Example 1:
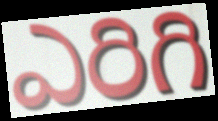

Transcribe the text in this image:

ఎరిగి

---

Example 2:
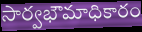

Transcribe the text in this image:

సార్వభౌమాధికారం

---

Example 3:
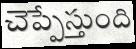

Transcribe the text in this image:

చెప్పేస్తుంది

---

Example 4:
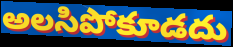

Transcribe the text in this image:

అలసిపోకూడదు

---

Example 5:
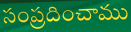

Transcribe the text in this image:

సంప్రదించాము